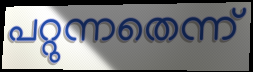
പറ്റുന്നതെന്ന്